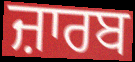
ਜ਼ਾਰਬ